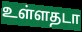
உள்ளதடா